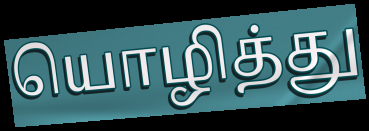
யொழித்து